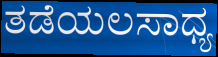
ತಡೆಯಲಸಾಧ್ಯ